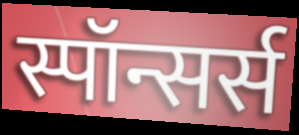
स्पॉन्सर्स